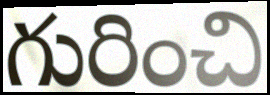
గురించి